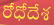
రోధోదేశ